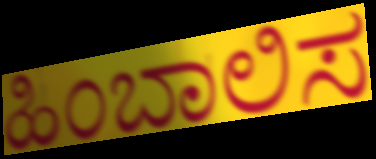
ಹಿಂಬಾಲಿಸ